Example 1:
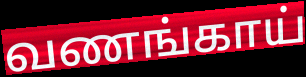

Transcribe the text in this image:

வணங்காய்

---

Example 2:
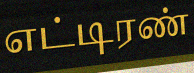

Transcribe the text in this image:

எட்டிரண்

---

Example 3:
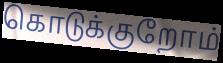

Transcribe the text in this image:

கொடுக்குறோம்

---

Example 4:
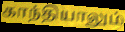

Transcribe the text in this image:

காந்தியாலும்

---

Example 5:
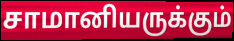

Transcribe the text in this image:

சாமானியருக்கும்